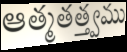
ఆత్మతత్త్వము